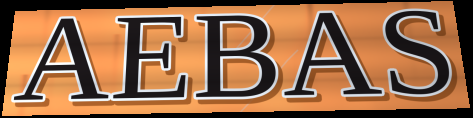
AEBAS